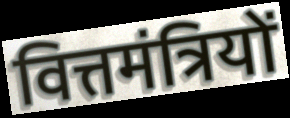
वित्तमंत्रियों